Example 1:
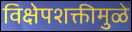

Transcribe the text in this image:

विक्षेपशक्तीमुळे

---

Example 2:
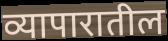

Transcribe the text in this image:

व्यापारातील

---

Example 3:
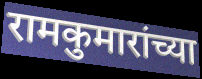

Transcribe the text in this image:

रामकुमारांच्या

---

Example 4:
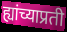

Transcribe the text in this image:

ह्यांच्याप्रती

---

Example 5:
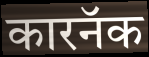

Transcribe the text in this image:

कारनॅक